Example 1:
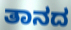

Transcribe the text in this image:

ತಾನದ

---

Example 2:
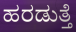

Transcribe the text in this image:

ಹರಡುತ್ತೆ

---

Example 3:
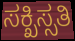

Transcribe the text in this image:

ಸಕ್ಖಿಸ್ಸತಿ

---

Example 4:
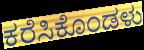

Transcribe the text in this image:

ಕರೆಸಿಕೊಂಡಳು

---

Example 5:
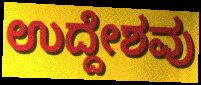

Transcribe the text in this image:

ಉದ್ದೇಶವು